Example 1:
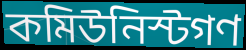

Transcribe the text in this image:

কমিউনিস্টগণ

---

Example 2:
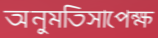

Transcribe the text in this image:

অনুমতিসাপেক্ষ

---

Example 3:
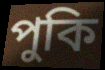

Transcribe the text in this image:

পুকি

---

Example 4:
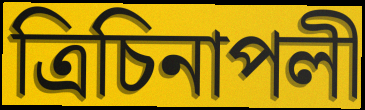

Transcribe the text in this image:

ত্রিচিনাপলী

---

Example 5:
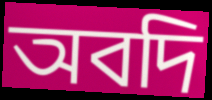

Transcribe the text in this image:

অবদি